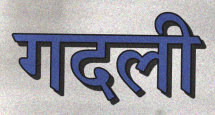
गदली